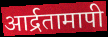
आर्द्रतामापी